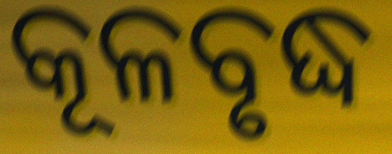
କୂଳବୃଦ୍ଧ